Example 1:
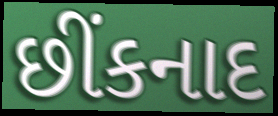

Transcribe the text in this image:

છીંકનાદ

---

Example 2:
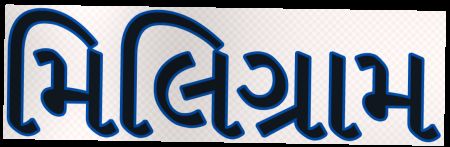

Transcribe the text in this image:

મિલિગ્રામ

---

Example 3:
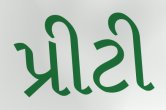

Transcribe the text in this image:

પ્રીટી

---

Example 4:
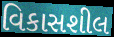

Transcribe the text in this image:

વિકાસશીલ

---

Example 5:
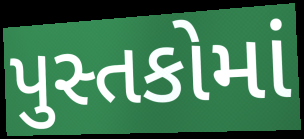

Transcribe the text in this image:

પુસ્તકોમાં